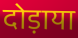
दोड़ाया